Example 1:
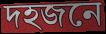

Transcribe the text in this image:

দহজনে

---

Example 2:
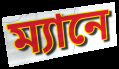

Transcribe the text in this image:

ম্যানে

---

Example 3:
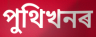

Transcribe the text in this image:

পুথিখনৰ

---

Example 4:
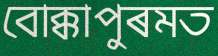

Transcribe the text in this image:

বোক্কাপুৰমত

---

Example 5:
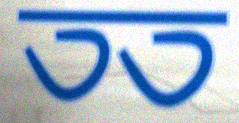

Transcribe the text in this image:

তত